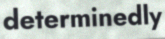
determinedly